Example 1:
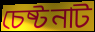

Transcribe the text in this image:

চেষ্টনাট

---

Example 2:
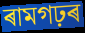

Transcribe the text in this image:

ৰামগঢ়ৰ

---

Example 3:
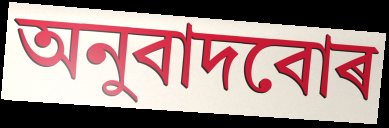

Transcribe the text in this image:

অনুবাদবোৰ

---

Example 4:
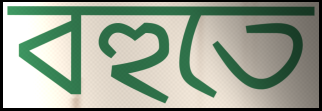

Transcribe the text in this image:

বহুতে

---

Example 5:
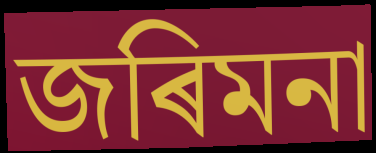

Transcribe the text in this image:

জৰিমনা